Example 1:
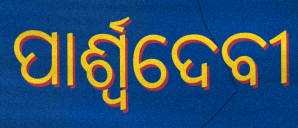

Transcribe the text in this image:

ପାର୍ଶ୍ୱଦେବୀ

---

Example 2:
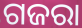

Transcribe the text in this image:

ଗଜରା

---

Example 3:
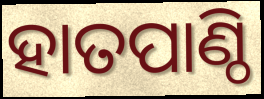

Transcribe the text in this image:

ହାତପାଣ୍ଠି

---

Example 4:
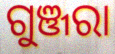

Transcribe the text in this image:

ଗୁଞ୍ଜରା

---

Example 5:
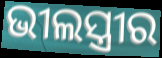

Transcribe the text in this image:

ଭୀଲସ୍ତ୍ରୀର